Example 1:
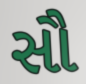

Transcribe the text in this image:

સૌ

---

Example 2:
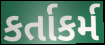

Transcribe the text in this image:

કર્તાકર્મ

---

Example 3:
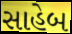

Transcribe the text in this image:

સાહેબ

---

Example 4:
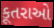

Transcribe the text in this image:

કૂતરાઓ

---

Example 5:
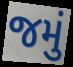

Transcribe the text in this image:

જમું